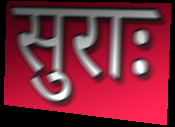
सुराः